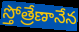
స్తోత్రేణానేన